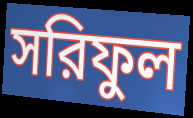
সরিফুল